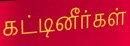
கட்டினீர்கள்